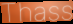
Thass